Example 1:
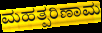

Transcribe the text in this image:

ಮಹತ್ಪರಿಣಾಮ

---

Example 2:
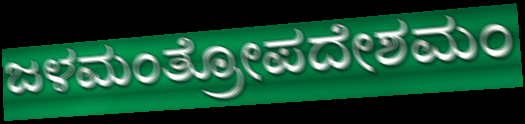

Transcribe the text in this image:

ಜಳಮಂತ್ರೋಪದೇಶಮಂ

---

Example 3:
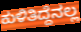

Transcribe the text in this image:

ಕುಳಿತಿದ್ದೆನಲ್ಲ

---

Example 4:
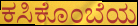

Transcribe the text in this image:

ಕಸಿಕೊಂಬೆಯ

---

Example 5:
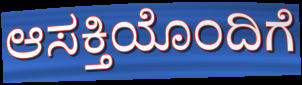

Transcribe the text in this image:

ಆಸಕ್ತಿಯೊಂದಿಗೆ